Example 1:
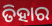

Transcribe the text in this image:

ତିହାର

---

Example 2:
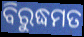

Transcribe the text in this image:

ବିରୁଦ୍ଧମତ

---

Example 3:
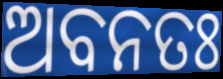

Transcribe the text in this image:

ଅବନତଃ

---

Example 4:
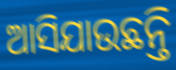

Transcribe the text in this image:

ଆସିଯାଉଛନ୍ତି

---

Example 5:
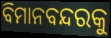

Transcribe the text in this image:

ବିମାନବନ୍ଦରକୁ